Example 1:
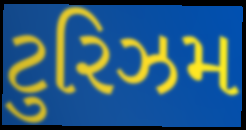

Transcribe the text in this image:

ટુરિઝમ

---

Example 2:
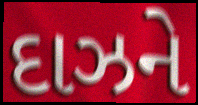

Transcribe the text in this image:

દાઝને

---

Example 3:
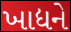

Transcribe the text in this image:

ખાદ્યને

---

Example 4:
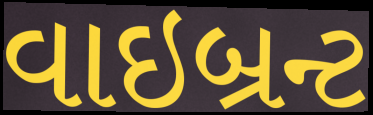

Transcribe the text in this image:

વાઇબ્રન્ટ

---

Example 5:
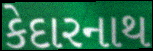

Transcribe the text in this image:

કેદારનાથ